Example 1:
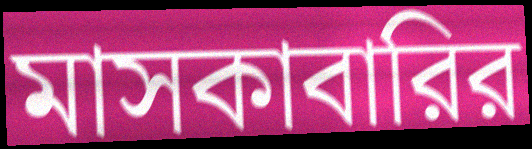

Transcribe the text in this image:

মাসকাবারির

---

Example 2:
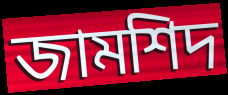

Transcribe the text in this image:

জামশিদ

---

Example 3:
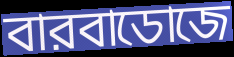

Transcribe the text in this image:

বারবাডোজে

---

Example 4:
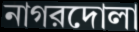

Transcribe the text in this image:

নাগরদোলা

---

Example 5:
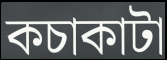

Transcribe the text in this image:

কচাকাটা